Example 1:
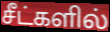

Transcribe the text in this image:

சீட்களில்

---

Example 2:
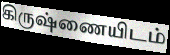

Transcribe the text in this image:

கிருஷ்ணையிடம்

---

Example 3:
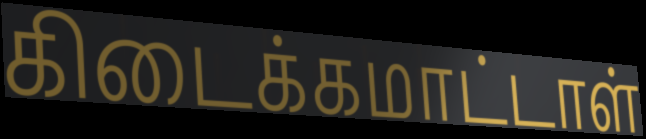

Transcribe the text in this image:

கிடைக்கமாட்டாள்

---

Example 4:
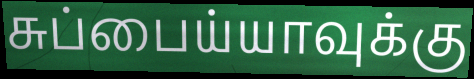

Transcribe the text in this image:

சுப்பைய்யாவுக்கு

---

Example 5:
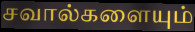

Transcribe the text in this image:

சவால்களையும்